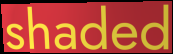
shaded